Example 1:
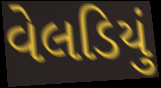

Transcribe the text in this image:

વેલડિયું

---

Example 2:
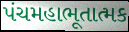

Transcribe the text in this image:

પંચમહાભૂતાત્મક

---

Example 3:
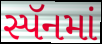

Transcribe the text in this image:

સ્પૅનમાં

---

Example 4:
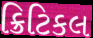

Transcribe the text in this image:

ક્રિટિકલ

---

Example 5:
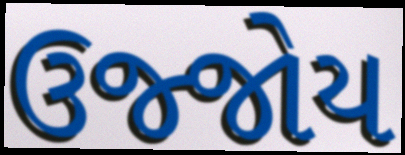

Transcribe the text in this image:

ઉજ્જોય